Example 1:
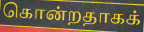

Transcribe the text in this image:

கொன்றதாகக்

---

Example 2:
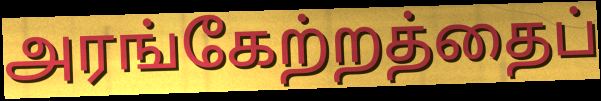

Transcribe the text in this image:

அரங்கேற்றத்தைப்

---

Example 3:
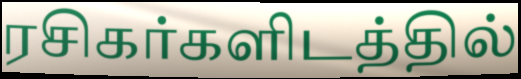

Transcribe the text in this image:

ரசிகர்களிடத்தில்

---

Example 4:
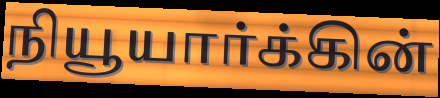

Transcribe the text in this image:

நியூயார்க்கின்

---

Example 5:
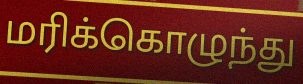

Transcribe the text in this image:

மரிக்கொழுந்து